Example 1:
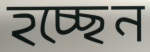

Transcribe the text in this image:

হচ্ছেন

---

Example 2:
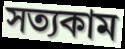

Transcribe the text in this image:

সত্যকাম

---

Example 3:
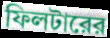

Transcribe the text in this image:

ফিলটারের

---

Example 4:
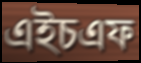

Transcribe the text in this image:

এইচএফ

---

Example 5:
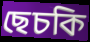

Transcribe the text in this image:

ছেচকি